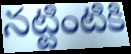
నట్టింటికి